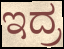
ಇದ್ರ